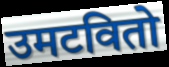
उमटवितो